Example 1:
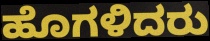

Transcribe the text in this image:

ಹೊಗಳಿದರು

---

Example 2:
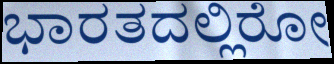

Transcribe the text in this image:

ಭಾರತದಲ್ಲಿರೋ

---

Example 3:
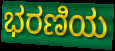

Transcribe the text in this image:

ಭರಣಿಯ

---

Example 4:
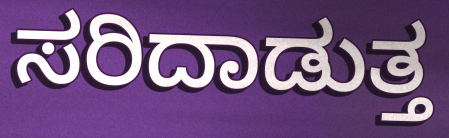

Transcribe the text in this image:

ಸರಿದಾಡುತ್ತ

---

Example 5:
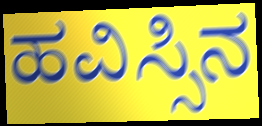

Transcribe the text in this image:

ಹವಿಸ್ಸಿನ